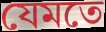
যেমতে